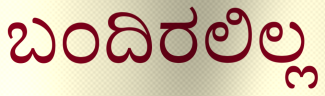
ಬಂದಿರಲಿಲ್ಲ